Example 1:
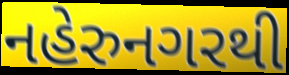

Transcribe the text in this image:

નહેરુનગરથી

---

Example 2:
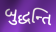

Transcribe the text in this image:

બુદ્ધન્તિ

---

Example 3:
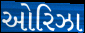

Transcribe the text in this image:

ઓરિઝા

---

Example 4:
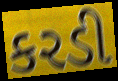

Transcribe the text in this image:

કરડી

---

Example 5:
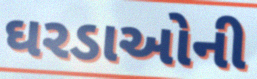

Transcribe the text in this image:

ઘરડાઓની